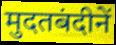
मुदतबंदीनें